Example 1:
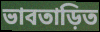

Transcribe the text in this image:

ভাবতাড়িত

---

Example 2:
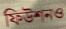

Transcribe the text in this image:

ফিউশনও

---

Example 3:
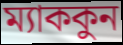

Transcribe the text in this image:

ম্যাককুন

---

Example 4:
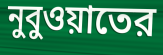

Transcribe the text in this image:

নুবুওয়াতের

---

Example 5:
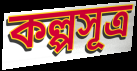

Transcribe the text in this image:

কল্পসূত্র